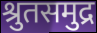
श्रुतसमुद्र